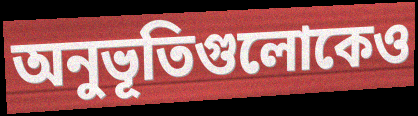
অনুভূতিগুলোকেও